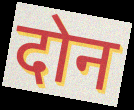
दोन